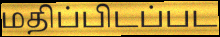
மதிப்பிடப்பட